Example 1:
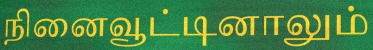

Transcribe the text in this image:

நினைவூட்டினாலும்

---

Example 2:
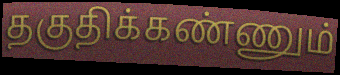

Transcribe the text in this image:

தகுதிக்கண்ணும்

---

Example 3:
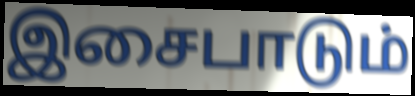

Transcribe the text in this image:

இசைபாடும்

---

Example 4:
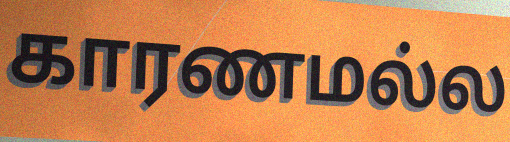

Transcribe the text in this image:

காரணமல்ல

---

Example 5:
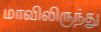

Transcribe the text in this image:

மாவிலிருந்து